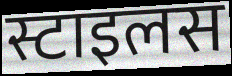
स्टाइलस